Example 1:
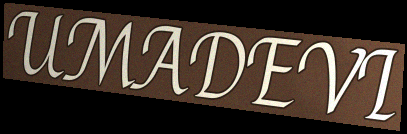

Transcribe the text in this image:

UMADEVI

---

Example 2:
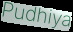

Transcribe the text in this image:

Pudhiya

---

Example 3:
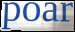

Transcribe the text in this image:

poar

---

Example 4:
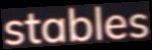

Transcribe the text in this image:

stables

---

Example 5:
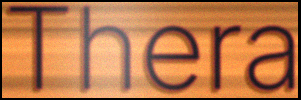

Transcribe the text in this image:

Thera